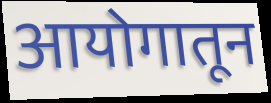
आयोगातून